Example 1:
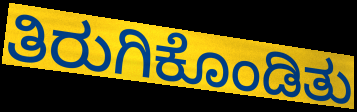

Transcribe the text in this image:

ತಿರುಗಿಕೊಂಡಿತು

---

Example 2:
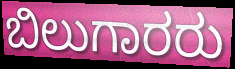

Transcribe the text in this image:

ಬಿಲುಗಾರರು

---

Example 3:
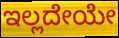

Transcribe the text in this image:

ಇಲ್ಲದೇಯೇ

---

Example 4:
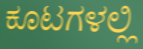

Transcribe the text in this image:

ಕೂಟಗಳಲ್ಲಿ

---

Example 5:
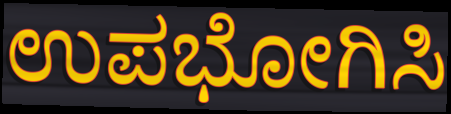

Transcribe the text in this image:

ಉಪಭೋಗಿಸಿ